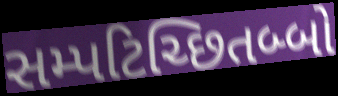
સમ્પટિચ્છિતબ્બો